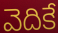
వెదికే